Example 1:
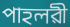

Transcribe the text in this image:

পাহলৱী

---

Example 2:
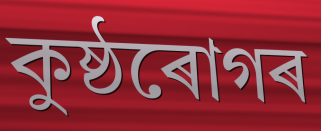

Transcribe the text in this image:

কুষ্ঠৰোগৰ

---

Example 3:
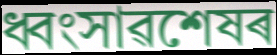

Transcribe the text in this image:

ধ্বংসাৱশেষৰ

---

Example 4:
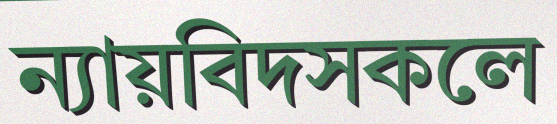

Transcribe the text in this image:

ন্যায়বিদসকলে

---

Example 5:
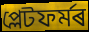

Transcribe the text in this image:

প্লেটফৰ্মৰ